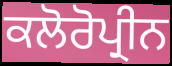
ਕਲੋਰੋਪ੍ਰੀਨ